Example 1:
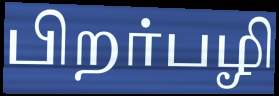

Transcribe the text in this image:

பிறர்பழி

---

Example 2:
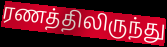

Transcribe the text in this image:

ரணத்திலிருந்து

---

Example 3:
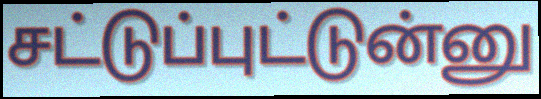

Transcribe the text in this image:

சட்டுப்புட்டுன்னு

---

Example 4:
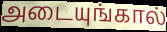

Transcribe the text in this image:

அடையுங்கால்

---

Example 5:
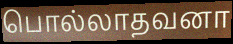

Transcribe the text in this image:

பொல்லாதவனா